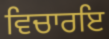
ਵਿਚਾਰਇ